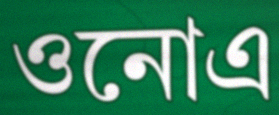
ওনোএ